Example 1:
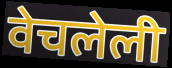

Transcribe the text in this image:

वेचलेली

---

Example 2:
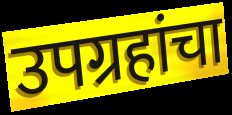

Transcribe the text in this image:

उपग्रहांचा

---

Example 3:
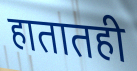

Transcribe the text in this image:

हातातही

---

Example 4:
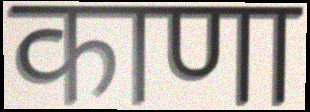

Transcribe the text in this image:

काणा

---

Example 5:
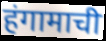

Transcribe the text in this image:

हंगामाची